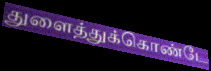
துளைத்துக்கொண்டே